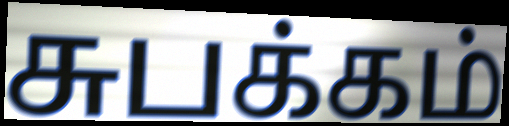
சுபக்கம்